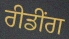
ਰੀਡੀਂਗ